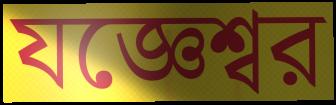
যজ্ঞেশ্বর